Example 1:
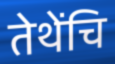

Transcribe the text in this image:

तेथेंचि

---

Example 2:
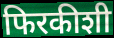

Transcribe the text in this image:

फिरकीशी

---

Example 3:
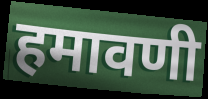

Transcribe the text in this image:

हमावणी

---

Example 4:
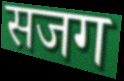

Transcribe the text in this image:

सजग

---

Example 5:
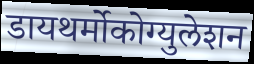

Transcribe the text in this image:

डायथर्मोकोग्युलेशन